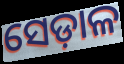
ସେଡ଼ାଳ